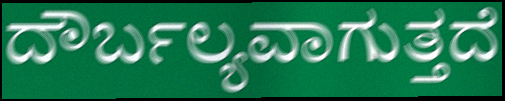
ದೌರ್ಬಲ್ಯವಾಗುತ್ತದೆ